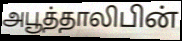
அபூத்தாலிபின்